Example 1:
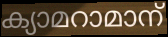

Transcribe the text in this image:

ക്യാമറാമാന്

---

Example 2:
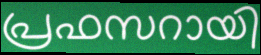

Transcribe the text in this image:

പ്രഫസറായി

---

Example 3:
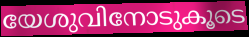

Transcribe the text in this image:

യേശുവിനോടുകൂടെ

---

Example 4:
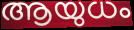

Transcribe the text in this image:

ആയുധം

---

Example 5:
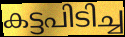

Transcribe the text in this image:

കട്ടപിടിച്ച